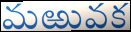
మఱువక